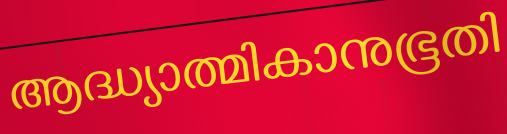
ആദ്ധ്യാത്മികാനുഭൂതി